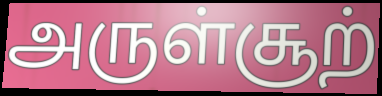
அருள்சூற்